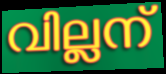
വില്ലന്